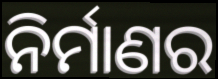
ନିର୍ମାଣର